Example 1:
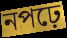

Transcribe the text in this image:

নপঢ়ে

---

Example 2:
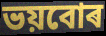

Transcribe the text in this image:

ভয়বোৰ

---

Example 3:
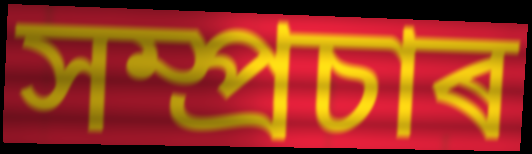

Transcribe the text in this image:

সম্প্ৰচাৰ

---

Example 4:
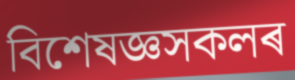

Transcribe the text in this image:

বিশেষজ্ঞসকলৰ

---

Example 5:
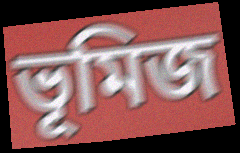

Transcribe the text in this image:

ভূমিজ